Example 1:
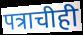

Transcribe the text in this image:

पत्राचीही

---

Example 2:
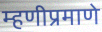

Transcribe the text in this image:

म्हणीप्रमाणे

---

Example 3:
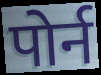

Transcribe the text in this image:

पोर्न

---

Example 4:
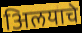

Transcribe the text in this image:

अिलयाचे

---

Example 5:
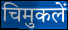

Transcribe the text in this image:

चिमुकलें